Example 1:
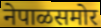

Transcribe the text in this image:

नेपाळसमोर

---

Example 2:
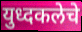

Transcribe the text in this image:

युध्दकलेचे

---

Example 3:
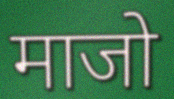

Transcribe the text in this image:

माजो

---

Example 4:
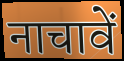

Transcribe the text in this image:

नाचावें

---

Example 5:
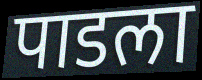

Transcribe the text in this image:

पाडला